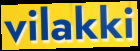
vilakki